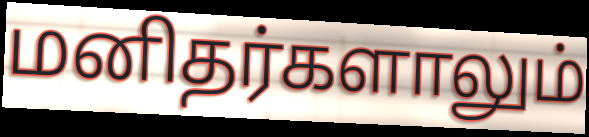
மனிதர்களாலும்